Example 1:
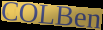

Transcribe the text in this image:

COLBen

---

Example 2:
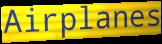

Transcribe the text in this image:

Airplanes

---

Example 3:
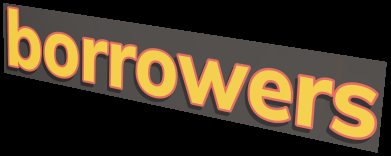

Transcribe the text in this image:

borrowers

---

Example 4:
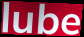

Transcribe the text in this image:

lube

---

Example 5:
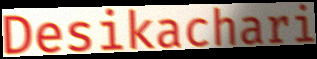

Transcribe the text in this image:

Desikachari